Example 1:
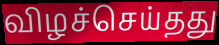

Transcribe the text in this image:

விழச்செய்தது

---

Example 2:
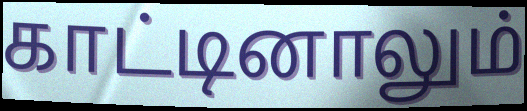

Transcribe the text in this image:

காட்டினாலும்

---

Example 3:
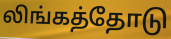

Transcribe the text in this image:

லிங்கத்தோடு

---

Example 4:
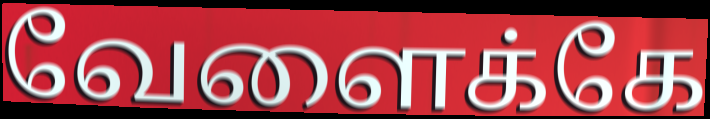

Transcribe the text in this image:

வேளைக்கே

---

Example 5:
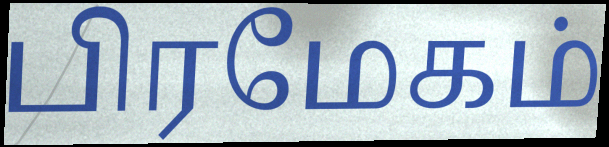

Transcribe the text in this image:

பிரமேகம்